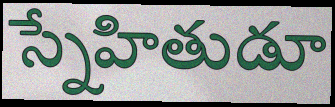
స్నేహితుడూ